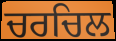
ਚਰਚਿਲ